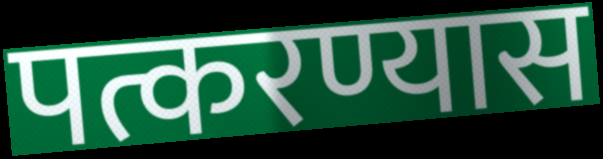
पत्करण्यास